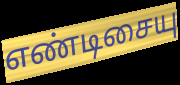
எண்டிசையு